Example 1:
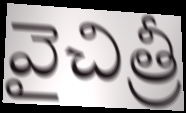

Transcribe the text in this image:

వైచిత్రీ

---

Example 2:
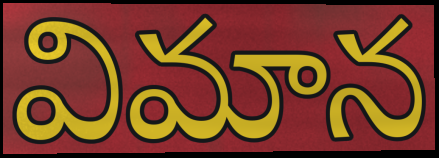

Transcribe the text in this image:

విమాన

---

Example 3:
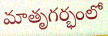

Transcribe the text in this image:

మాతృగర్భంలో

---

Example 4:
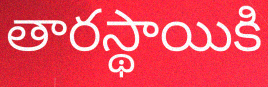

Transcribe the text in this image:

తారస్థాయికి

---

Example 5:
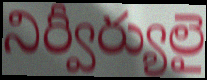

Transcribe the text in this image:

నిర్వీర్యులై